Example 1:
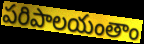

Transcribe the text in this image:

పరిపాలయంతాం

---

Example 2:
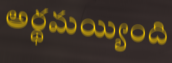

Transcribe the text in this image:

అర్థమయ్యింది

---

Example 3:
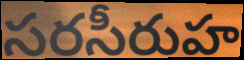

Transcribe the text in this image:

సరసీరుహ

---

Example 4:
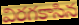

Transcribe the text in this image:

విరగకాసిన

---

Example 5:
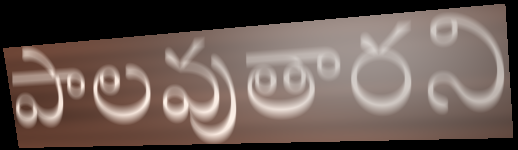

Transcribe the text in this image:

పాలవుతారని